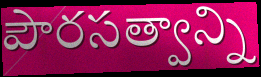
పౌరసత్వాన్ని